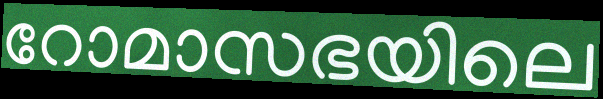
റോമാസഭയിലെ